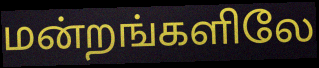
மன்றங்களிலே